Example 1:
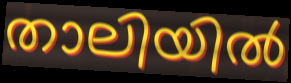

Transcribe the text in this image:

താലിയിൽ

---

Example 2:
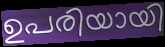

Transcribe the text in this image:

ഉപരിയായി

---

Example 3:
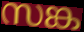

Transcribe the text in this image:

സങ്ക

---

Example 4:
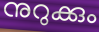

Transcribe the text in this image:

നുറുക്കും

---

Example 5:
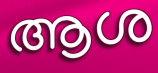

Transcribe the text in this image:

ആശ